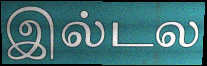
இல்டல